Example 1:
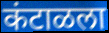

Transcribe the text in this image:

कंटाळला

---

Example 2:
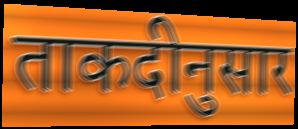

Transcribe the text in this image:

ताकदीनुसार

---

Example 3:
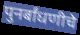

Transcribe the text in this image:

पुनर्बांधणीचे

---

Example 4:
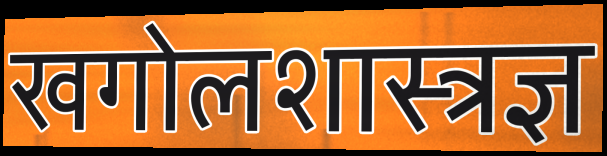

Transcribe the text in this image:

खगोलशास्त्रज्ञ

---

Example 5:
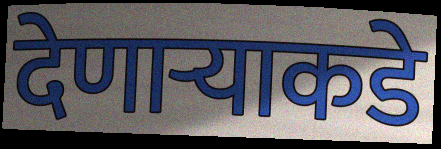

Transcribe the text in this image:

देणाऱ्याकडे